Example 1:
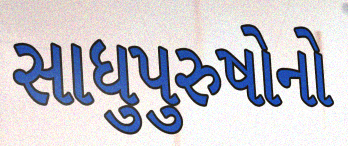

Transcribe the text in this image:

સાધુપુરુષોનો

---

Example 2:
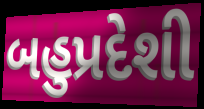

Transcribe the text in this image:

બહુપ્રદેશી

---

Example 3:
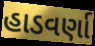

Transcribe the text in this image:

હાડવર્ણા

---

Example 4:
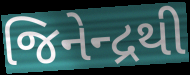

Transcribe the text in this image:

જિનેન્દ્રથી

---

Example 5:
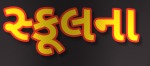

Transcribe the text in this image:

સ્કૂલના